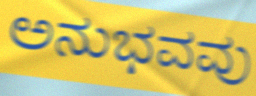
ಅನುಭವವು